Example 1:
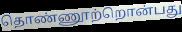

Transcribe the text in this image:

தொண்ணூற்றொன்பது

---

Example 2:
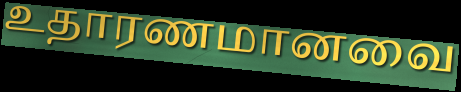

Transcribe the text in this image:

உதாரணமானவை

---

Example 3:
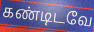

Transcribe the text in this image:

கண்டிடவே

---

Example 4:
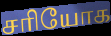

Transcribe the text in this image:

சரியோக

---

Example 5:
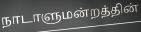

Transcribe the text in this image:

நாடாளுமன்றத்தின்